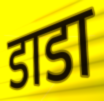
डाडा